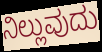
ನಿಲ್ಲುವುದು